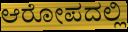
ಆರೋಪದಲ್ಲಿ